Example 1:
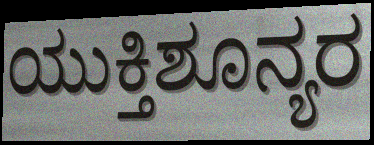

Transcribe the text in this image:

ಯುಕ್ತಿಶೂನ್ಯರ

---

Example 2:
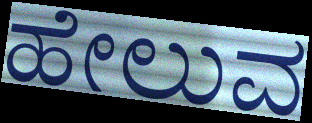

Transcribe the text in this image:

ಹೇಲುವ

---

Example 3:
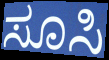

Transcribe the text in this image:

ಸೂಸಿ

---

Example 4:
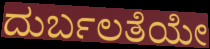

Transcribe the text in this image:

ದುರ್ಬಲತೆಯೇ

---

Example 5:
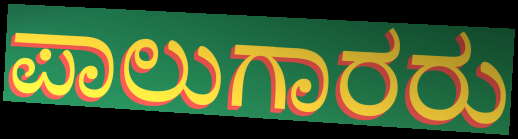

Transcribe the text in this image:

ಪಾಲುಗಾರರು